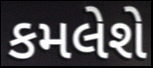
કમલેશે